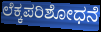
ಲೆಕ್ಕಪರಿಶೋಧನೆ